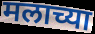
मलाच्या